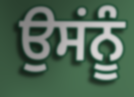
ਉਸਂਨੂੰ